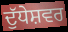
ਦੁੱਧੇਸ਼ਵਰ